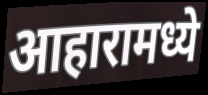
आहारामध्ये